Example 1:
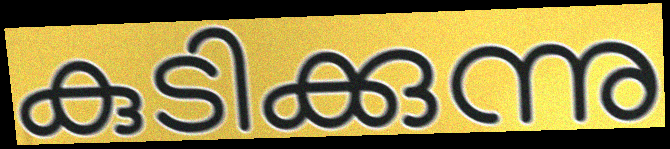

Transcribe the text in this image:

കുടിക്കുന്നു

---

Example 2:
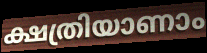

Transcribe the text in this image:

ക്ഷത്രിയാണാം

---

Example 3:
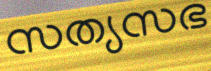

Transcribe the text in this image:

സത്യസഭ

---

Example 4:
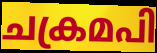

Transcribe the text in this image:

ചക്രമപി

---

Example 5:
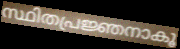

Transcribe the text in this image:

സ്ഥിതപ്രജ്ഞനാകൂ